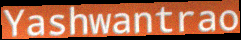
Yashwantrao